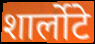
शार्लोटे